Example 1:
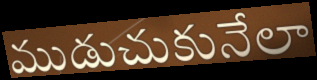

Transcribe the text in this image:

ముడుచుకునేలా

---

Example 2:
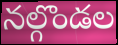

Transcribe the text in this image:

నల్గొండల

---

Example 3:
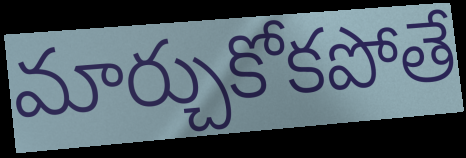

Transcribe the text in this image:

మార్చుకోకపోతే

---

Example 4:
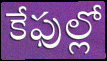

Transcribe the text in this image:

కేఫుల్లో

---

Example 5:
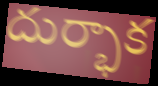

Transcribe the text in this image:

దుర్భాక